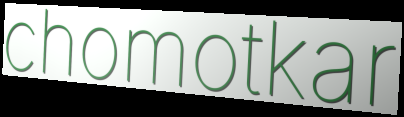
chomotkar